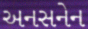
અનસનેન